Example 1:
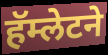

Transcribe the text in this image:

हॅम्लेटने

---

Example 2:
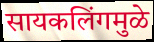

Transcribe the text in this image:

सायकलिंगमुळे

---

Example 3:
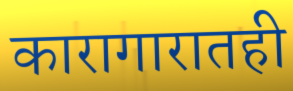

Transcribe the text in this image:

कारागारातही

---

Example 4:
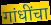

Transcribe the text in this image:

गांधींचा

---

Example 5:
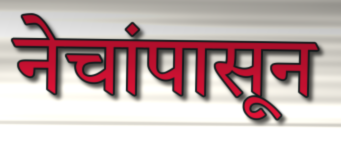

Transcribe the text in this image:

नेचांपासून